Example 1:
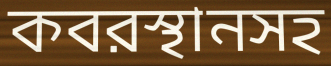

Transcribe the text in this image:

কবরস্থানসহ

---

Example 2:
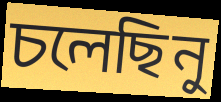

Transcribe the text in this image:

চলেছিনু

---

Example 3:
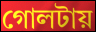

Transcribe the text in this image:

গোলটায়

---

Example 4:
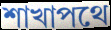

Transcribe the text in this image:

শাখাপথে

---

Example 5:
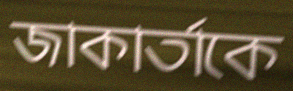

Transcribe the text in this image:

জাকার্তাকে